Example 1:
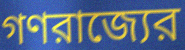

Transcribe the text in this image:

গণরাজ্যের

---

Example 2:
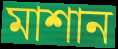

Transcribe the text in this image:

মাশান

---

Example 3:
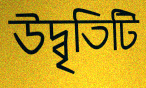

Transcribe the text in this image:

উদ্বৃতিটি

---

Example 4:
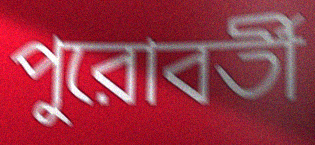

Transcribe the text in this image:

পুরোবর্তী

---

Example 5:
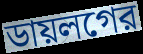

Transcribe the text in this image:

ডায়লগের